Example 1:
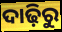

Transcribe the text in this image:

ଦାଢ଼ିରୁ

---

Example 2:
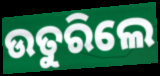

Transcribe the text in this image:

ଉତୁରିଲେ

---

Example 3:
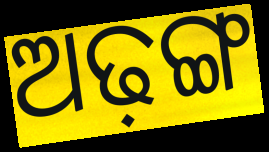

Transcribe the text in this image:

ଅଢ଼ଙ୍ଗ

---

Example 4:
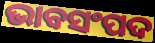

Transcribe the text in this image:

ଭାବସଂପଦ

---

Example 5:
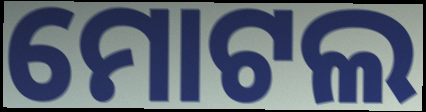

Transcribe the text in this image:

ମୋଟଲ